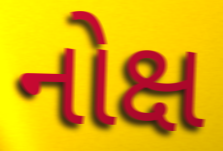
નોક્ષ